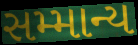
સમ્માન્ય